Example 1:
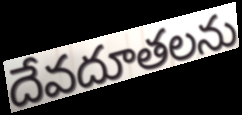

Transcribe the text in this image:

దేవదూతలను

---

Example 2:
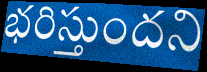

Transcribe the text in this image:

భరిస్తుందని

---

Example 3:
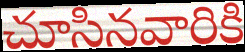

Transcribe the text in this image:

చూసినవారికి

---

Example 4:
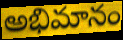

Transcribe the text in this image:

అభిమానం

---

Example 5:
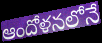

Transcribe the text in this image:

ఆందోళనలోనే